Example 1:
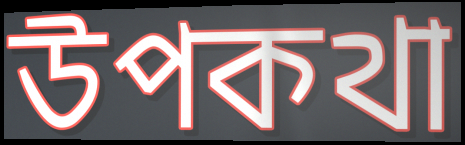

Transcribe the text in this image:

উপকথা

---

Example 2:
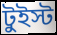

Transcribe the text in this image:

টুইস্ট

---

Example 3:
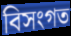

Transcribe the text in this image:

বিসংগত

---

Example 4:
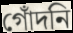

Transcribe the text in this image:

গোঁদনি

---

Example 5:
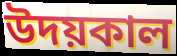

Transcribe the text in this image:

উদয়কাল